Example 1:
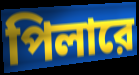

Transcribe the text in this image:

পিলারে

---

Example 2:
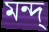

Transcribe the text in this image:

মন্দ্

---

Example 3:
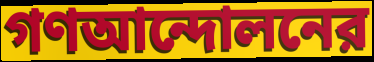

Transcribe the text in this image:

গণআন্দোলনের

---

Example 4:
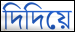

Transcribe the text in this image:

দিদিয়ে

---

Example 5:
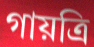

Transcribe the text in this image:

গায়ত্রি